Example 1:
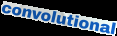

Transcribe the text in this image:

convolutional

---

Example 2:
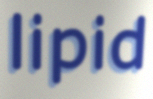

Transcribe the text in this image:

lipid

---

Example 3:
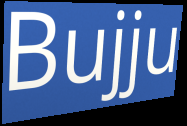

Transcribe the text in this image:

Bujju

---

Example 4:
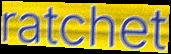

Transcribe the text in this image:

ratchet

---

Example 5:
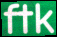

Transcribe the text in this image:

ftk